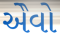
એેવો